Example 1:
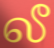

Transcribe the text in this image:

லீ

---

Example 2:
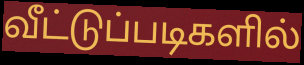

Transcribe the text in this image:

வீட்டுப்படிகளில்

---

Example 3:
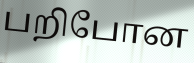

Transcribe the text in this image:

பறிபோன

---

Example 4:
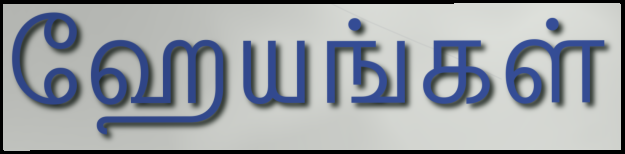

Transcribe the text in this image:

ஹேயங்கள்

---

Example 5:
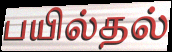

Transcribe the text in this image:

பயில்தல்